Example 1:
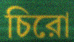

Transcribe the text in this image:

চিরো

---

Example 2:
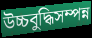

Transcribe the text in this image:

উচ্চবুদ্ধিসম্পন্ন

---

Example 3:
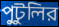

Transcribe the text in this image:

পুটুলির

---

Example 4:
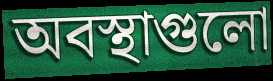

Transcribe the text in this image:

অবস্থাগুলো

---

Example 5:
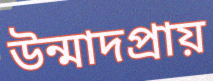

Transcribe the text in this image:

উন্মাদপ্রায়